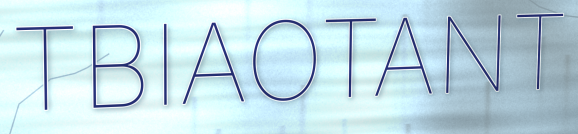
TBIAOTANT